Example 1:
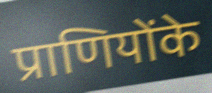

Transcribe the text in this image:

प्राणियोंके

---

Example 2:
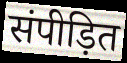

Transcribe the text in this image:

संपीड़ित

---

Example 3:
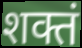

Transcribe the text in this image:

शक्तं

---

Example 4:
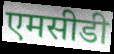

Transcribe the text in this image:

एमसीडी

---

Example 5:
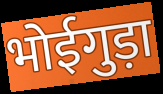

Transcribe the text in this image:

भोईगुड़ा